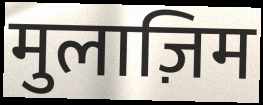
मुलाज़िम